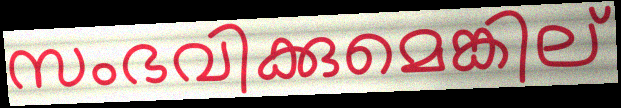
സംഭവിക്കുമെങ്കില്